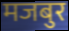
मजबुर